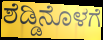
ಶೆಡ್ಡಿನೊಳಗೆ